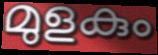
മുളകും